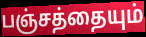
பஞ்சத்தையும்